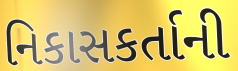
નિકાસકર્તાની